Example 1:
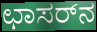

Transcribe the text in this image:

ಛಾಸರ್‌ನ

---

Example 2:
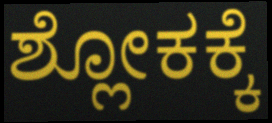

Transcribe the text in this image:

ಶ್ಲೋಕಕ್ಕೆ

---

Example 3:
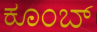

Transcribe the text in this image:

ಕೂಂಬ್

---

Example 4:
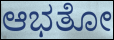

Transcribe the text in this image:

ಆಭತೋ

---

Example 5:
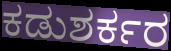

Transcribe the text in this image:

ಕಡುಶರ್ಕರ